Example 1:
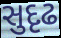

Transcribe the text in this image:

સુદૃઢ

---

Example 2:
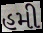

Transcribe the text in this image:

હમી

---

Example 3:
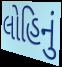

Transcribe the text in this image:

લોહિનું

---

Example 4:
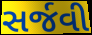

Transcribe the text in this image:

સર્જવી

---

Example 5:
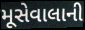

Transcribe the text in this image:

મૂસેવાલાની